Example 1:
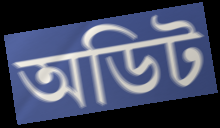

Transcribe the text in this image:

অডিট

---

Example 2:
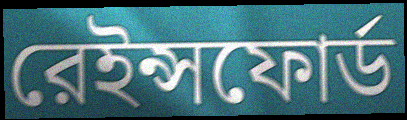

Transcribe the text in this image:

রেইন্সফোর্ড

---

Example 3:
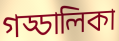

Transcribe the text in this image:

গড্ডালিকা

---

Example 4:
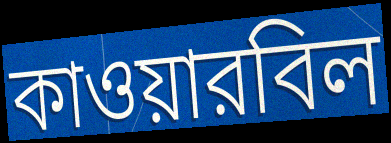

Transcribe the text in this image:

কাওয়ারবিল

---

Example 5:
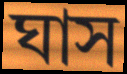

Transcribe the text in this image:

ঘাস